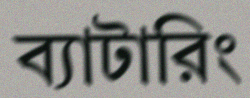
ব্যাটারিং